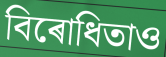
বিৰোধিতাও